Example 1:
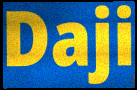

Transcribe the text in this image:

Daji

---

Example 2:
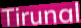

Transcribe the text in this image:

Tirunal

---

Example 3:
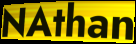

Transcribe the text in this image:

NAthan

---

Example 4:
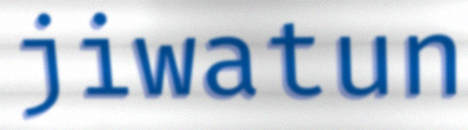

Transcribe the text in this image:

jiwatun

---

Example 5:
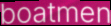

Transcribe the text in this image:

boatmen